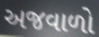
અજવાળો